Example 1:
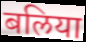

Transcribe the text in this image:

बलिया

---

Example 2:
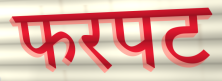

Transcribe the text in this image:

फरपट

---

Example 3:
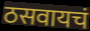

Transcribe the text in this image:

ठसवायचं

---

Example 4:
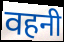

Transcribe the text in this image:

वहनी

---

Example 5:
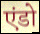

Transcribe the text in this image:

एंडो